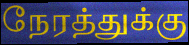
நேரத்துக்கு